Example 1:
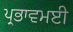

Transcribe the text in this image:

ਪ੍ਰਭਾਵਮਈ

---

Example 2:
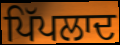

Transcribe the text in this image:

ਪਿੱਪਲਾਦ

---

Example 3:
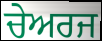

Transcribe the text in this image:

ਚੇਅਰਜ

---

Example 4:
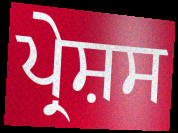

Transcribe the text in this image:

ਪ੍ਰੇਸ਼ਸ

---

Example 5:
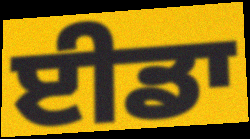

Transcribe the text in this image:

ਈਡਾ